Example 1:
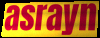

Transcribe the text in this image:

asrayn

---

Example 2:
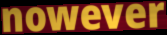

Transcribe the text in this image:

nowever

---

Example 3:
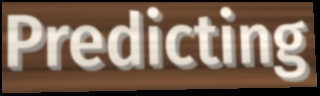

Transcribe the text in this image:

Predicting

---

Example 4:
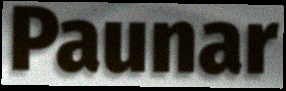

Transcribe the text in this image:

Paunar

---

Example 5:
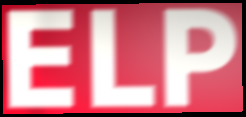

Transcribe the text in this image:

ELP